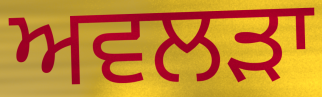
ਅਵਲੜਾ